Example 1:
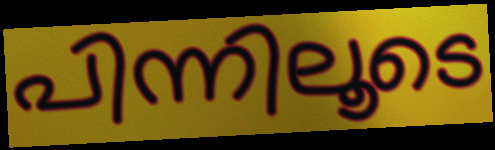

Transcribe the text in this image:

പിന്നിലൂടെ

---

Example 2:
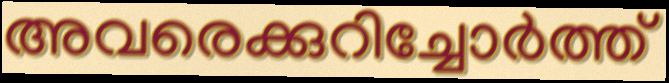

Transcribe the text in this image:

അവരെക്കുറിച്ചോർത്ത്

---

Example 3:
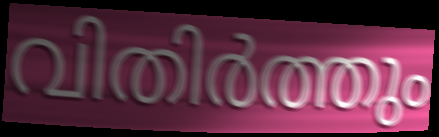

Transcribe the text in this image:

വിതിർത്തും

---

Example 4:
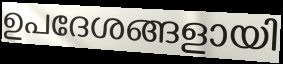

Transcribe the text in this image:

ഉപദേശങ്ങളായി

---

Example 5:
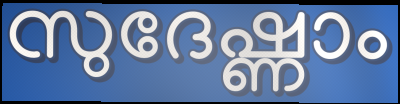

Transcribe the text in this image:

സുദേഷ്ണാം